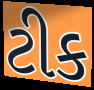
ટીક